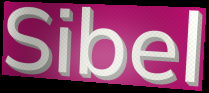
Sibel